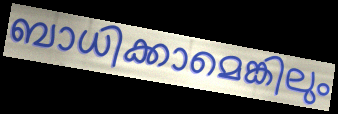
ബാധിക്കാമെങ്കിലും